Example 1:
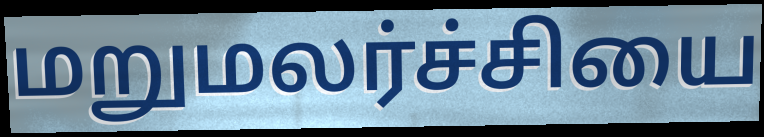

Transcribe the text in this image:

மறுமலர்ச்சியை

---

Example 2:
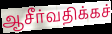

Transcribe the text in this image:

ஆசீர்வதிக்கச்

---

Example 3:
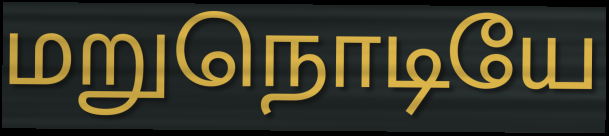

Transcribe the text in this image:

மறுநொடியே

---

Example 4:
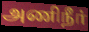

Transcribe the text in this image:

அணிநீர்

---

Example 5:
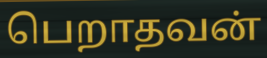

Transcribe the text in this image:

பெறாதவன்